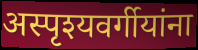
अस्पृश्यवर्गीयांना